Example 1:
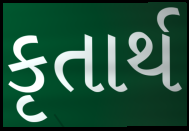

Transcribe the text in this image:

કૃતાર્થ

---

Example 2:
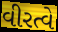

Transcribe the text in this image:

વીરત્વે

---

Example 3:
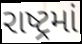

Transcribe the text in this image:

રાષ્ટ્રમાં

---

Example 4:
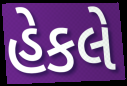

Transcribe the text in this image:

હેકલે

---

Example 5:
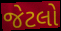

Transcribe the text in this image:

જેટલો